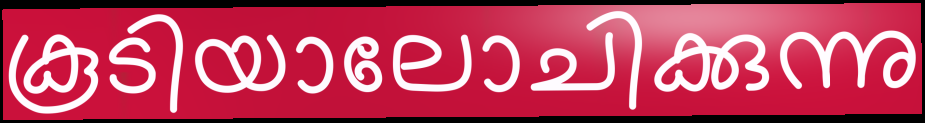
കൂടിയാലോചിക്കുന്നു